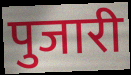
पुजारी